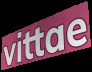
vittae